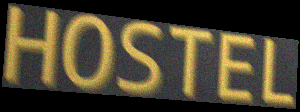
HOSTEL